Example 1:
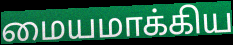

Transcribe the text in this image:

மையமாக்கிய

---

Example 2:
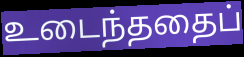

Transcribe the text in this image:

உடைந்ததைப்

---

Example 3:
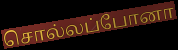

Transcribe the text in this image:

சொல்லப்போனா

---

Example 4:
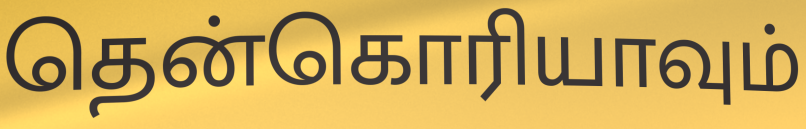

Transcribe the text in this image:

தென்கொரியாவும்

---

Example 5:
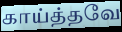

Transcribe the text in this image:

காய்த்தவே